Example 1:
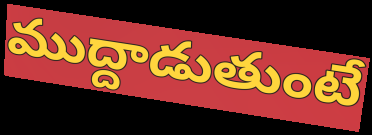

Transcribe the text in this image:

ముద్దాడుతుంటే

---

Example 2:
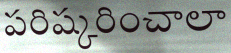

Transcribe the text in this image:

పరిష్కరించాలా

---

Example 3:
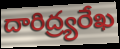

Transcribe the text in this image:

దారిద్ర్యరేఖ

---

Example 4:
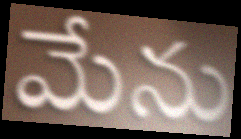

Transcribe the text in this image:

మేను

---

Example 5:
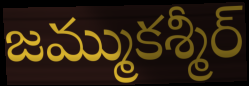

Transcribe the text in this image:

జమ్ముకశ్మీర్